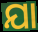
ଯା